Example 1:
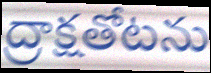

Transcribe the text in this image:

ద్రాక్షతోటను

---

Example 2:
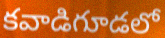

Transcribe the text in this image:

కవాడిగూడలో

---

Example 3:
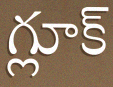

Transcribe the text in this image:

గ్లూక్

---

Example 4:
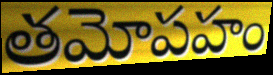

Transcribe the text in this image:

తమోపహం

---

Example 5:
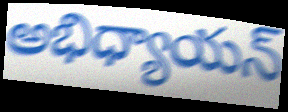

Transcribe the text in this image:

అభిధ్యాయన్